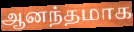
ஆனந்தமாக